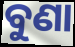
ବୁଣା